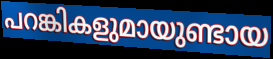
പറങ്കികളുമായുണ്ടായ